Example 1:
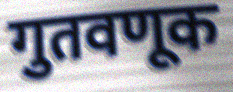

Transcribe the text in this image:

गुतवणूक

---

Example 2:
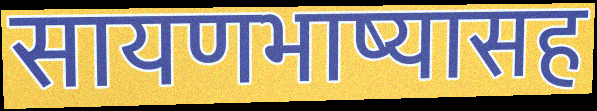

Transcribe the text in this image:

सायणभाष्यासह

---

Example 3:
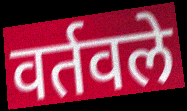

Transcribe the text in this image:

वर्तवले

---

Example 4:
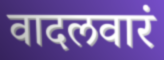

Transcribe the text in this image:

वादलवारं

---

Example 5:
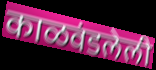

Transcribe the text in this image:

काळवंडलेली